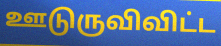
ஊடுருவிவிட்ட